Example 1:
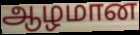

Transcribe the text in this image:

ஆழமான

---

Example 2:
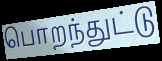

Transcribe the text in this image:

பொறந்துட்டு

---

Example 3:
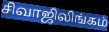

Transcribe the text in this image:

சிவாஜிலிங்கம்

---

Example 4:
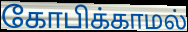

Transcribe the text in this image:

கோபிக்காமல்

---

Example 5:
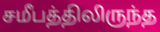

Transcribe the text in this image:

சமீபத்திலிருந்த